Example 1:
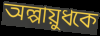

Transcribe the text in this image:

অল্পায়ুধকে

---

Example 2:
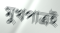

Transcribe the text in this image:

মুখপাত্রই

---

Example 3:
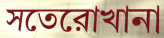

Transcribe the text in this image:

সতেরোখানা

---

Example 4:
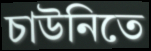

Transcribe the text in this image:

চাউনিতে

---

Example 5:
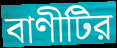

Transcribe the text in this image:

বাণীটির